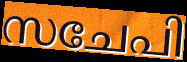
സചേപി